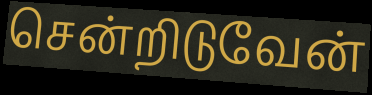
சென்றிடுவேன்